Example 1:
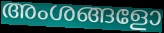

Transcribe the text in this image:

അംശങ്ങളോ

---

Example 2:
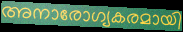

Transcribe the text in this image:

അനാരോഗ്യകരമായി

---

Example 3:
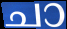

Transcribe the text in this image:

ചാ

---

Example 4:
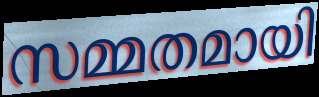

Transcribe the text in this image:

സമ്മതമായി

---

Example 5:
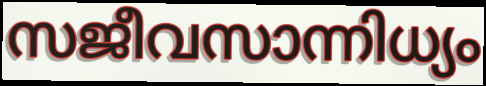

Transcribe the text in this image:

സജീവസാന്നിധ്യം